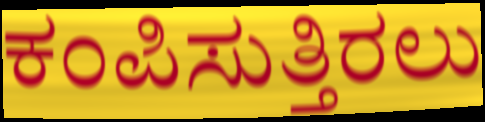
ಕಂಪಿಸುತ್ತಿರಲು